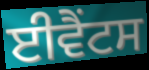
ਈਵੈਂਟਸ